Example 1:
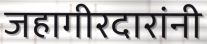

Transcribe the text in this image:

जहागीरदारांनी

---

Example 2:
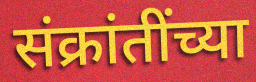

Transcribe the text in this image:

संक्रांतींच्या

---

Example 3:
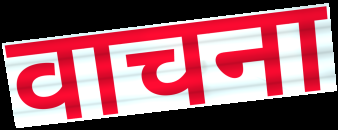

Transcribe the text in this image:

वाचना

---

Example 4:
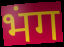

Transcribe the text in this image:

भंग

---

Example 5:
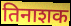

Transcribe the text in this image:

तिनाशक